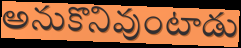
అనుకొనివుంటాడు